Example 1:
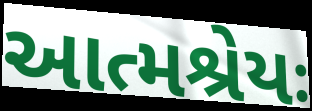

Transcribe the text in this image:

આત્મશ્રેયઃ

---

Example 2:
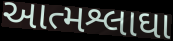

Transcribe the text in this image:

આત્મશ્લાઘા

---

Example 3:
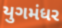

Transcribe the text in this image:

યુગમંધર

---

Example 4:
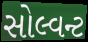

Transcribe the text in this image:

સોલ્વન્ટ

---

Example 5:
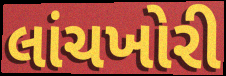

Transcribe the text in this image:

લાંચખોરી